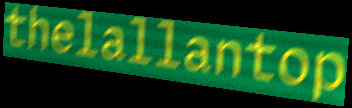
thelallantop